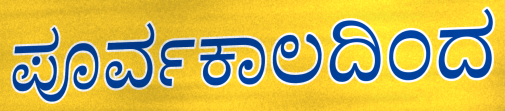
ಪೂರ್ವಕಾಲದಿಂದ